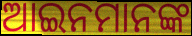
ଆଇନମାନଙ୍କ